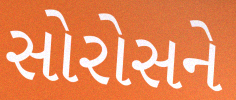
સોરોસને